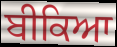
ਬੀਕਿਆ